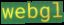
webgl